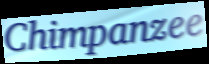
Chimpanzee